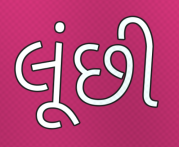
લૂંછી